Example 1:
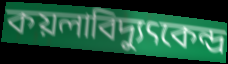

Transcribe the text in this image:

কয়লাবিদ্যুৎকেন্দ্র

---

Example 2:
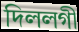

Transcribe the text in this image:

দিললগী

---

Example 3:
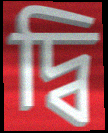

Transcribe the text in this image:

দ্বি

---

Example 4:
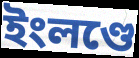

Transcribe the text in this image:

ইংলণ্ডে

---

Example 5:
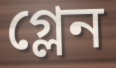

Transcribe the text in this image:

গ্লেন